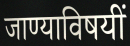
जाण्याविषयीं